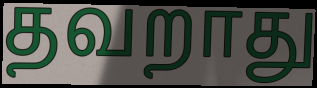
தவறாது